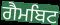
ਗੈਮਬਿਟ